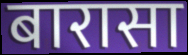
बारासा